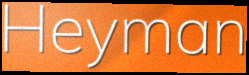
Heyman